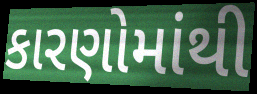
કારણોમાંથી